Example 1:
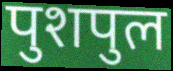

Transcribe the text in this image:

पुशपुल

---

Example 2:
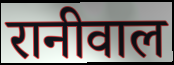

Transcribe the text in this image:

रानीवाल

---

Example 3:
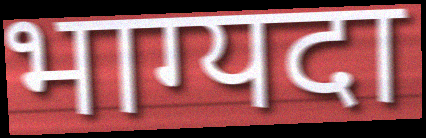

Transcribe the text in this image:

भाग्यदा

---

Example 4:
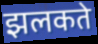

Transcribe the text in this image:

झलकते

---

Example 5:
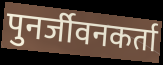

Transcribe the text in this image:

पुनर्जीवनकर्ता